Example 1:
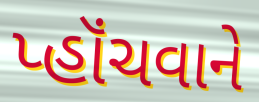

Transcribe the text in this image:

પ્હૉંચવાને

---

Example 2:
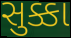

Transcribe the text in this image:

સુક્કા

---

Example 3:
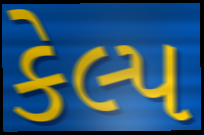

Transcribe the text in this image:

કેલ્પ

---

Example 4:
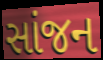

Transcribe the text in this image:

સાંજન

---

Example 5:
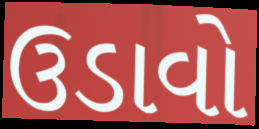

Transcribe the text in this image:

ઉડાવો